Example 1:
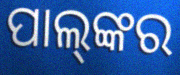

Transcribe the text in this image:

ପାଲ୍‍ଙ୍କର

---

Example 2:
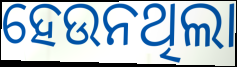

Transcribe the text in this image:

ହେଉନଥିଲା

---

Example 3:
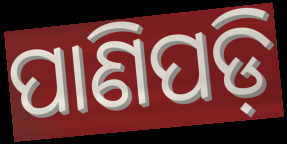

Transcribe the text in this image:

ପାଣିପଡ଼ି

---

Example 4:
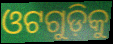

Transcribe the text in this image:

ଓଟଗୁଡ଼ିକୁ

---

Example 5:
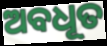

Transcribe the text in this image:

ଅବଧୂତ